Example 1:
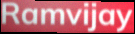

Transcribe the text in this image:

Ramvijay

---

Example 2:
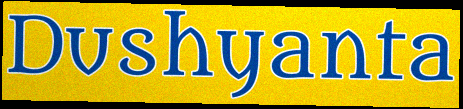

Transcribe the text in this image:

Dushyanta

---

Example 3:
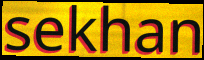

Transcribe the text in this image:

sekhan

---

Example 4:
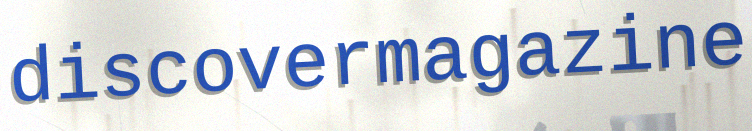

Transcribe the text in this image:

discovermagazine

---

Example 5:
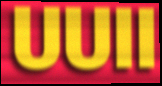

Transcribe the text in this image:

UUII